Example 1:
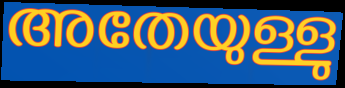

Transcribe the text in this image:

അതേയുള്ളു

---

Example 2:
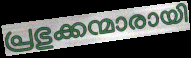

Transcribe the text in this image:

പ്രഭുക്കന്മാരായി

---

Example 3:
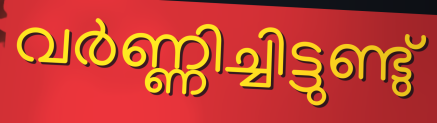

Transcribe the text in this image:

വർണ്ണിച്ചിട്ടുണ്ടു്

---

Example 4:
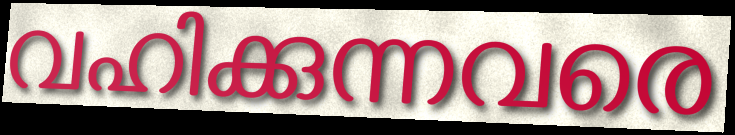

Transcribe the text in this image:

വഹിക്കുന്നവരെ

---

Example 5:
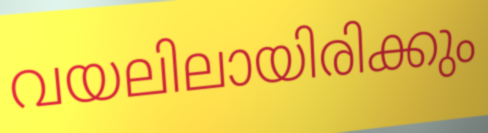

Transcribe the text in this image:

വയലിലായിരിക്കും